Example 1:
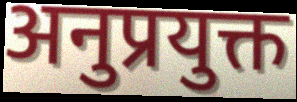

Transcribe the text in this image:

अनुप्रयुक्त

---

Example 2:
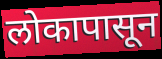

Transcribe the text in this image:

लोकापासून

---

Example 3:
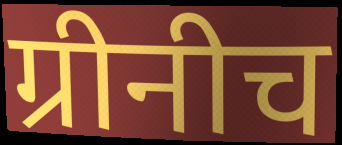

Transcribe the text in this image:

ग्रीनीच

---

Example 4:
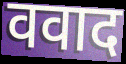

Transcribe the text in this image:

ववाद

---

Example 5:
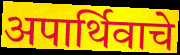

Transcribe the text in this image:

अपार्थिवाचे